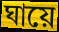
ঘায়ে